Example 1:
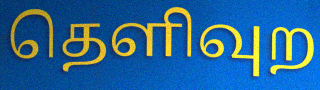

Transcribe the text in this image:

தெளிவுற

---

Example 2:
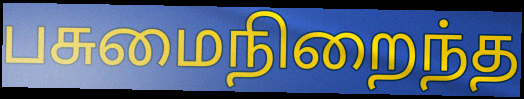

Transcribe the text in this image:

பசுமைநிறைந்த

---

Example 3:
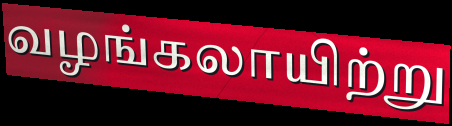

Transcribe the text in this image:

வழங்கலாயிற்று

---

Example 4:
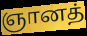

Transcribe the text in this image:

ஞானத்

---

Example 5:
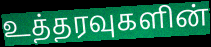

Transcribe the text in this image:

உத்தரவுகளின்